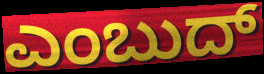
ಎಂಬುದ್